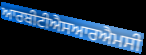
ਆਰਬੀਟੀਐਸਆਰਐਮਸੀ